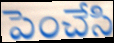
పెంచేసి